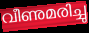
വീണുമരിച്ചു